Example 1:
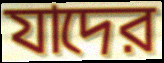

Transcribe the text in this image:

যাদের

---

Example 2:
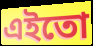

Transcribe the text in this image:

এইতো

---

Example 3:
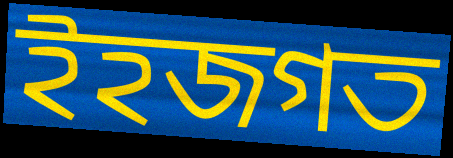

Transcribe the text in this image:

ইহজগত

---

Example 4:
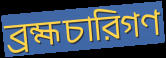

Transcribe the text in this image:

ব্রহ্মচারিগণ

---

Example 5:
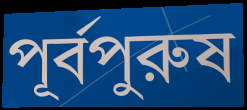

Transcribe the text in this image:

পূর্বপুরুষ